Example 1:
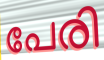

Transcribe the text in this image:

പേരി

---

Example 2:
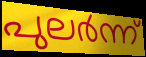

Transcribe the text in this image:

പുലർന്ന്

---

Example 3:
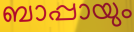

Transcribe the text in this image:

ബാപ്പായും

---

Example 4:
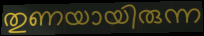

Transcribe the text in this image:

തുണയായിരുന്ന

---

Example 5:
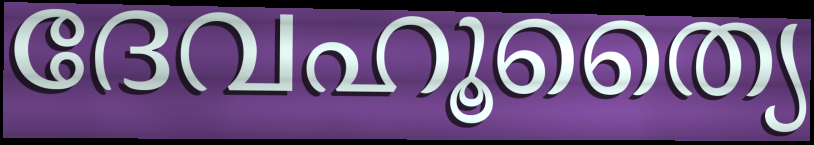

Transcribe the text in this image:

ദേവഹൂത്യൈ